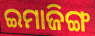
ଇମାଜିଙ୍ଗ